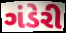
ગંડેરી